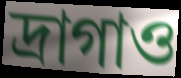
দ্রাগাও